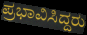
ಪ್ರಭಾವಿಸಿದ್ದರು